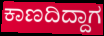
ಕಾಣದಿದ್ದಾಗ